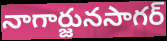
నాగార్జునసాగర్